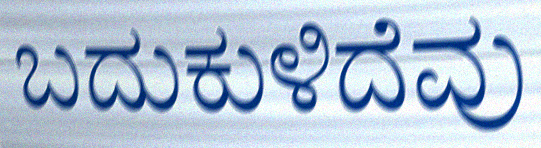
ಬದುಕುಳಿದೆವು